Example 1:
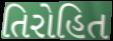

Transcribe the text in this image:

તિરોહિત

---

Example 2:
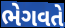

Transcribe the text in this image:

ભેગવતે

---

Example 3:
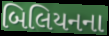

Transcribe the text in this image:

બિલિયનના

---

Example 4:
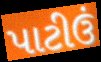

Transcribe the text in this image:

પાટીઉં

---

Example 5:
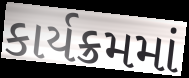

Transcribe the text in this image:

કાર્યક્રમમાં